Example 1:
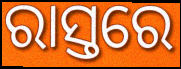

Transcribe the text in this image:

ରାସ୍ତରେ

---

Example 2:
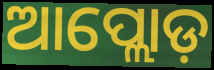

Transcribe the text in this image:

ଆପ୍ଲୋଡ଼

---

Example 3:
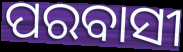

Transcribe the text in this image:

ପରବାସୀ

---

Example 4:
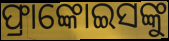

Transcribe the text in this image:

ଫ୍ରାଙ୍କୋଇସଙ୍କୁ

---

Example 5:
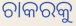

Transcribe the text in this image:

ଚାକରକୁ